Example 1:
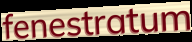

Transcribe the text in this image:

fenestratum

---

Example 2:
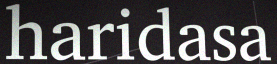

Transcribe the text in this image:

haridasa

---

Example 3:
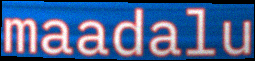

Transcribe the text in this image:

maadalu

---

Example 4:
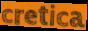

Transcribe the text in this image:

cretica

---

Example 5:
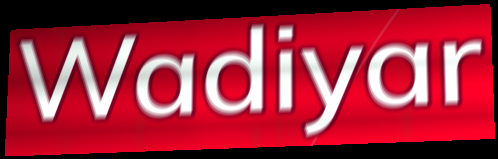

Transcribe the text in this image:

Wadiyar